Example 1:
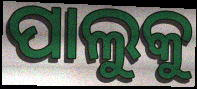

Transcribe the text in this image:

ପାଲୁକୁ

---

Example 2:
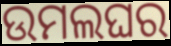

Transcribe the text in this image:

ଉମଲଘର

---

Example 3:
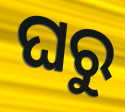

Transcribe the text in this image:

ଘରୁ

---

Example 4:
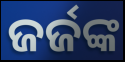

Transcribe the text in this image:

ଜର୍ଜଙ୍କ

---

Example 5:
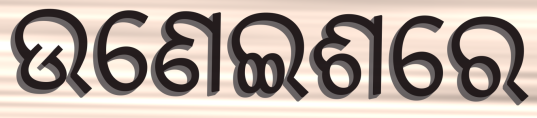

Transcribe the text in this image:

ଉଣେଇଶରେ